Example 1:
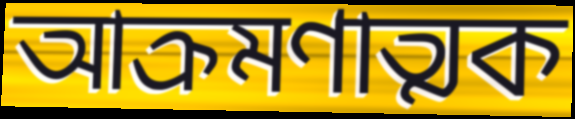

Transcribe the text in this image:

আক্রমণাত্মক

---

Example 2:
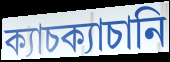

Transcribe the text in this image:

ক্যাচক্যাচানি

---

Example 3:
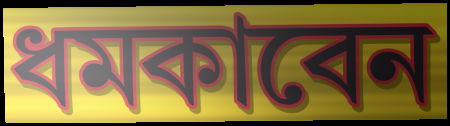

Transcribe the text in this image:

ধমকাবেন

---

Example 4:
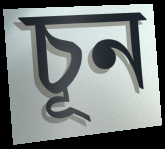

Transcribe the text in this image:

চূন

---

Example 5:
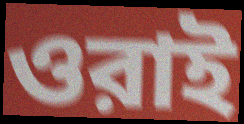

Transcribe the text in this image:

ওরাই